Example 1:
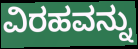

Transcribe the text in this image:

ವಿರಹವನ್ನು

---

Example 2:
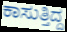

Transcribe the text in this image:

ಕಾಸುತ್ತಿದ್ದ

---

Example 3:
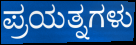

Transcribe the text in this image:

ಪ್ರಯತ್ನಗಳು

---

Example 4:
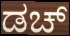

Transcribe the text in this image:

ಡಚ್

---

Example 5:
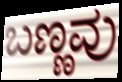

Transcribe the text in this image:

ಬಣ್ಣವು